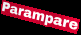
Parampare